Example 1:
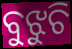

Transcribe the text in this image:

ବୁଝୁଚି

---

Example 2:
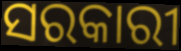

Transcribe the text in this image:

ସରକାରୀ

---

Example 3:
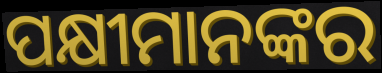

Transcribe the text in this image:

ପକ୍ଷୀମାନଙ୍କର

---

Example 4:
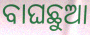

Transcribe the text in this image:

ବାଘଛୁଆ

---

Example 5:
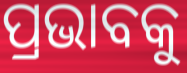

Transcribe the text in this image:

ପ୍ରଭାବକୁ